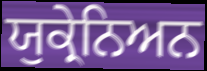
ਯੁਕ੍ਰੇਨਿਅਨ